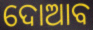
ଦୋଆବ